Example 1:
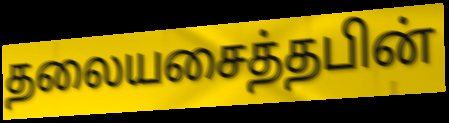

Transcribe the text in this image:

தலையசைத்தபின்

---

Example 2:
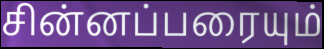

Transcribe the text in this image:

சின்னப்பரையும்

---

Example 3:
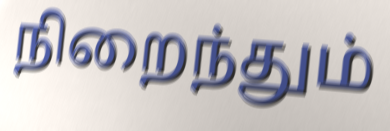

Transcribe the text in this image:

நிறைந்தும்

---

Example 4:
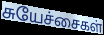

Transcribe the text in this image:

சுயேச்சைகள்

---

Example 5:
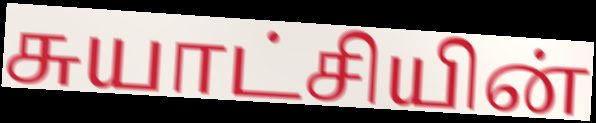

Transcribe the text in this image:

சுயாட்சியின்